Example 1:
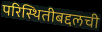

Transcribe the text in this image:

परिस्थितीबद्दलची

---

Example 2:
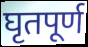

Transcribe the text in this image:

घृतपूर्ण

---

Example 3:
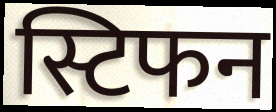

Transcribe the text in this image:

स्टिफन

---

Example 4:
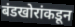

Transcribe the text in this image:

बंडखोरांकडून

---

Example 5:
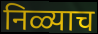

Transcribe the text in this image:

निळ्याच